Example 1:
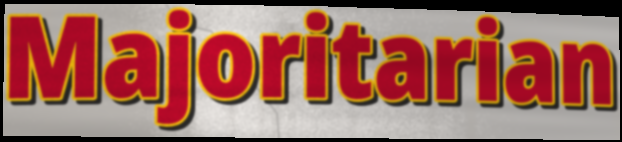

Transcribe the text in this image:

Majoritarian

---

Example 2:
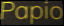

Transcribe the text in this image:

Papio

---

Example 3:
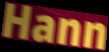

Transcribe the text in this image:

Hann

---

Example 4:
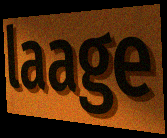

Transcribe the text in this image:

laage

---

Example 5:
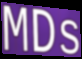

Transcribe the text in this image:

MDs